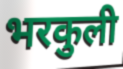
भरकुली